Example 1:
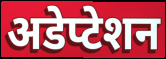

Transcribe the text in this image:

अडेप्टेशन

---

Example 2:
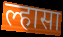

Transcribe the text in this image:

ल्हासा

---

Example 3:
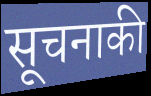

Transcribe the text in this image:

सूचनाकी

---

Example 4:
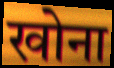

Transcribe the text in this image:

खोना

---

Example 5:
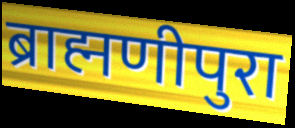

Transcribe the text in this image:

ब्राह्मणीपुरा